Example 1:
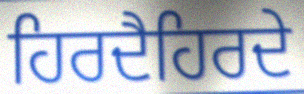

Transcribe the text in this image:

ਹਿਰਦੈਹਿਰਦੇ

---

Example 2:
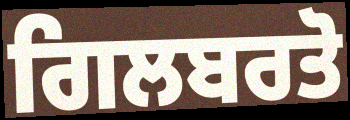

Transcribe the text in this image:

ਗਿਲਬਰਤੋ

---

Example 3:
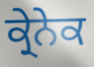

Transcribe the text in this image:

ਕ੍ਰੇਨੇਕ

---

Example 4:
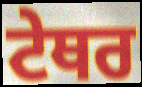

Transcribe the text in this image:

ਟੇਥਰ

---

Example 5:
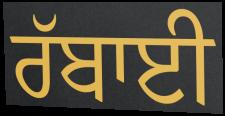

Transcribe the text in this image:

ਰੱਬਾਈ